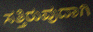
ಸತ್ತಿರುವುದಾಗಿ